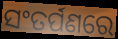
ସଂତର୍ପଣରେ